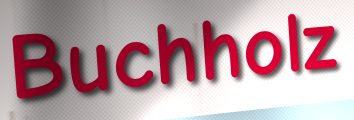
Buchholz